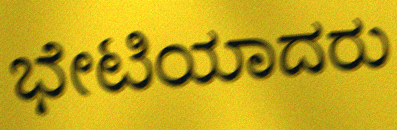
ಭೇಟಿಯಾದರು